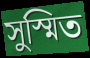
সুস্মিত